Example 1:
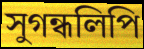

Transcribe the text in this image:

সুগন্ধলিপি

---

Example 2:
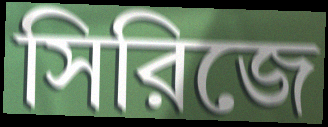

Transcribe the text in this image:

সিরিজে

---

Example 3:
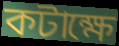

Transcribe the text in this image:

কটাক্ষে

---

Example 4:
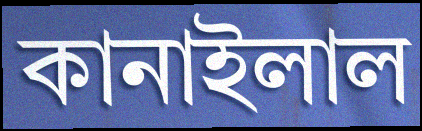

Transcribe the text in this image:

কানাইলাল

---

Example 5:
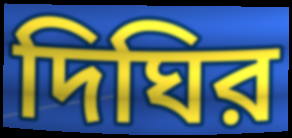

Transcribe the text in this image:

দিঘির